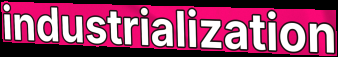
industrialization